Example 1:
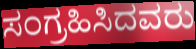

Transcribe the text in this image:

ಸಂಗ್ರಹಿಸಿದವರು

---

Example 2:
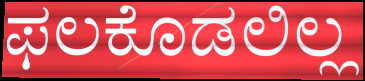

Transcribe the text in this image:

ಫಲಕೊಡಲಿಲ್ಲ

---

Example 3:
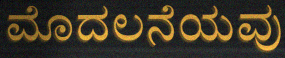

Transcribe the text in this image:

ಮೊದಲನೆಯವು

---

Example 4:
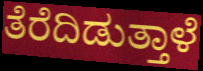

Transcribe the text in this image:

ತೆರೆದಿಡುತ್ತಾಳೆ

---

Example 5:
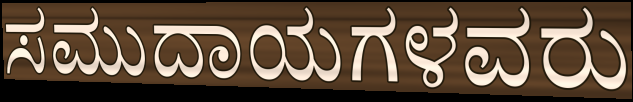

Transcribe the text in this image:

ಸಮುದಾಯಗಳವರು